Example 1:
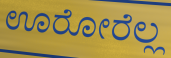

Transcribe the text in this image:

ಊರೋರೆಲ್ಲ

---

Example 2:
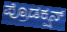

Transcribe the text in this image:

ಪ್ರೊಡಕ್ಷನ್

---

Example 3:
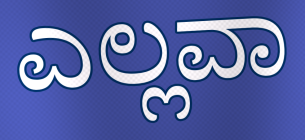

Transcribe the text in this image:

ಎಲ್ಲವಾ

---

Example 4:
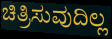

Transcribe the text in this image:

ಚಿತ್ರಿಸುವುದಿಲ್ಲ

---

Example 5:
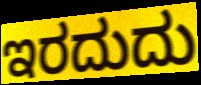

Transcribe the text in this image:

ಇರದುದು